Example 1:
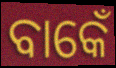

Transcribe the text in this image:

ବାକେଁ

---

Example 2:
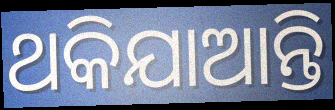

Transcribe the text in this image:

ଥକିଯାଆନ୍ତି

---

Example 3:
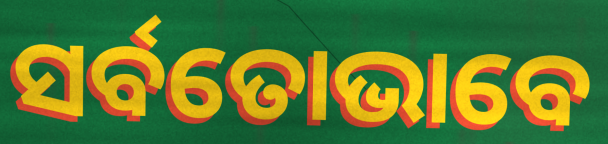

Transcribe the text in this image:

ସର୍ବତୋଭାବେ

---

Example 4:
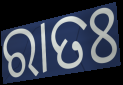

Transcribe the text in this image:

ରାତଃ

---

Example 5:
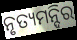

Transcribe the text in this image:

ନୃତ୍ୟମନ୍ଦିର